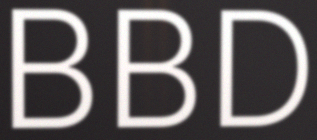
BBD